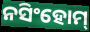
ନସିଂହୋମ୍